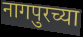
नागपुरच्या